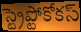
స్ట్రెప్టోకోకస్